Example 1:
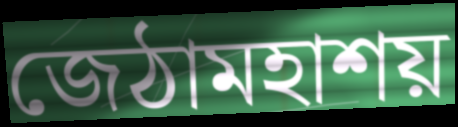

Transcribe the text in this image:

জেঠামহাশয়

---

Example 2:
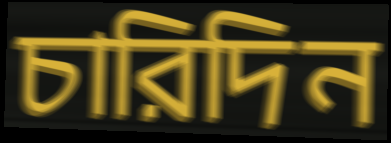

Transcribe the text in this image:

চারিদিন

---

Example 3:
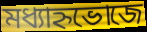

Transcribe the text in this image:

মধ্যাহ্নভোজে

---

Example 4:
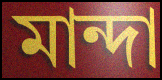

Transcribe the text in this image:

মান্দা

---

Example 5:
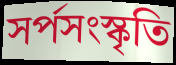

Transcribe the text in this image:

সর্পসংস্কৃতি